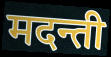
मदन्ती